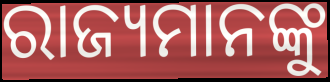
ରାଜ୍ଯମାନଙ୍କୁ